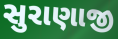
સુરાણાજી